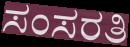
ಸಂಸರತಿ